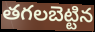
తగలబెట్టిన